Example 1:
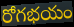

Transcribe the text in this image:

రోగభయం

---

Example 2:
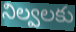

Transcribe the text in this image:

నిల్వలకు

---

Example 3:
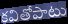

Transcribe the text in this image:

కవితోపాటు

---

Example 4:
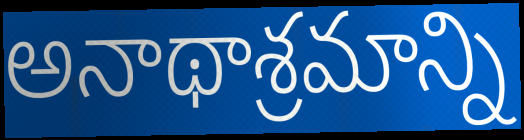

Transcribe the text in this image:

అనాథాశ్రమాన్ని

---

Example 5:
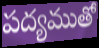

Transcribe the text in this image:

పద్యముతో